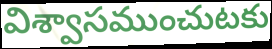
విశ్వాసముంచుటకు